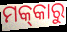
ମକ୍‌କାରୁ